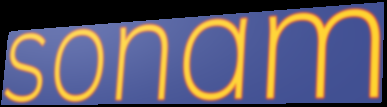
sonam